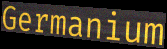
Germanium